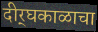
दीर्घकाळाचा